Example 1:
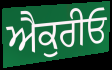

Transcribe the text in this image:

ਐਕੁਰੀਓ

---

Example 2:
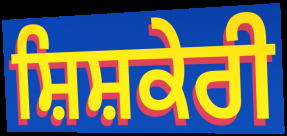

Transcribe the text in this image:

ਸ਼ਿਸ਼ਕੇਰੀ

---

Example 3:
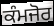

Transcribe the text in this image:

ਕੰਮਜੋਰ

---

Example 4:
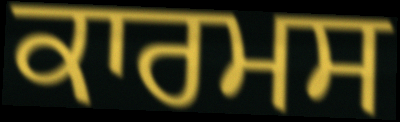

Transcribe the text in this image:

ਕਾਰਮਸ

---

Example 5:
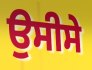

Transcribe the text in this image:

ਉਸੀਸੇ